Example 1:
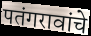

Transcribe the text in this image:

पतंगरावांचे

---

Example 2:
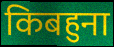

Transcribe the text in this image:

किबहुना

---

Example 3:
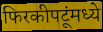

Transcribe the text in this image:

फिरकीपटूंमध्ये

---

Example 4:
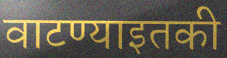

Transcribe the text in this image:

वाटण्याइतकी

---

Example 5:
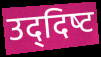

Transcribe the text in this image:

उद्‌दिष्‍ट